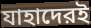
যাহাদেরই